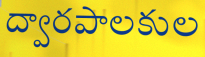
ద్వారపాలకుల